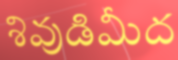
శివుడిమీద